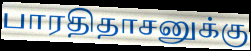
பாரதிதாசனுக்கு